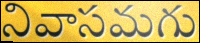
నివాసమగు